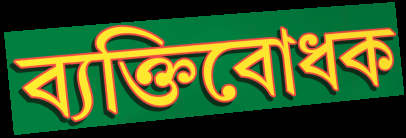
ব্যক্তিবোধক